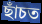
ছাঁচত